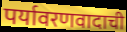
पर्यावरणवादाची